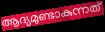
ആദ്യമുണ്ടാകുന്നത്